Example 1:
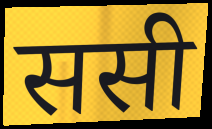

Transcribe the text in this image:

ससी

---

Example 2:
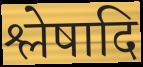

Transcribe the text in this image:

श्लेषादि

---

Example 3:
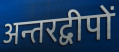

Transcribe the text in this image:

अन्तरद्वीपों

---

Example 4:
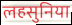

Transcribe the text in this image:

लहसुनिया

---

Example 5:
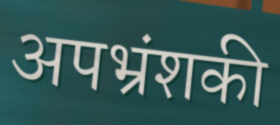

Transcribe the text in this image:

अपभ्रंशकी